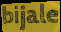
bijale